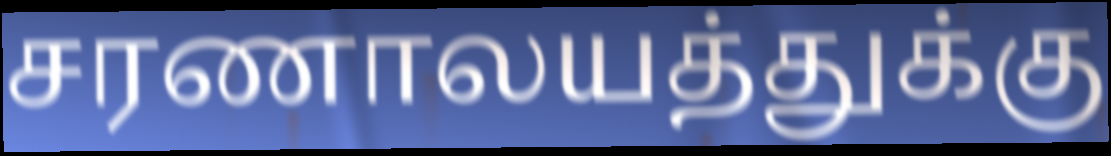
சரணாலயத்துக்கு